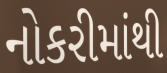
નોકરીમાંથી